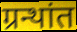
ग्रन्थांत